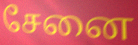
சேனை